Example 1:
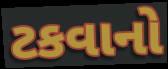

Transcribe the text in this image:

ટકવાનો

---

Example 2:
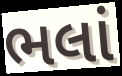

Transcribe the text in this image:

ભલાં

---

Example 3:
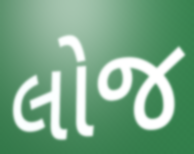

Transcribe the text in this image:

લોજ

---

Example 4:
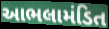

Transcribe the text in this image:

આભલામંડિત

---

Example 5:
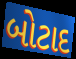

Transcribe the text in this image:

બોટાદ